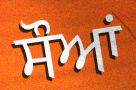
ਸੌਆਂ